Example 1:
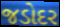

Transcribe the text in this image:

જડોદર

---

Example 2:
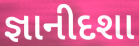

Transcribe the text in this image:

જ્ઞાનીદશા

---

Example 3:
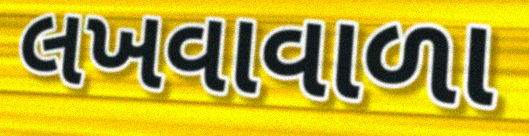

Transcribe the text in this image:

લખવાવાળા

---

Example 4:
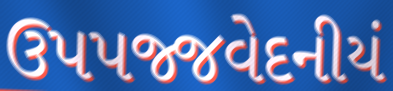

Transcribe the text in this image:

ઉપપજ્જવેદનીયં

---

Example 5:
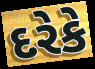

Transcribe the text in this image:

દરેકે